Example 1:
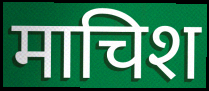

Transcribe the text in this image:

माचिश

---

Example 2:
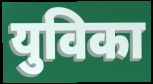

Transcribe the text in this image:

युविका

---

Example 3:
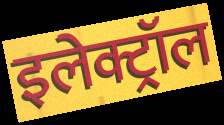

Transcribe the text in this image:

इलेक्ट्रॉल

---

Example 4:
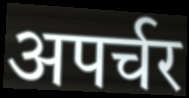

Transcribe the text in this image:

अपर्चर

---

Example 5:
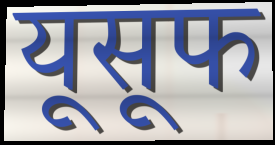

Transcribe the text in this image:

यूसूफ